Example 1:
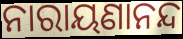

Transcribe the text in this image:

ନାରାୟଣାନନ୍ଦ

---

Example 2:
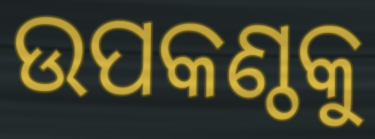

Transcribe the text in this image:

ଉପକଣ୍ଠକୁ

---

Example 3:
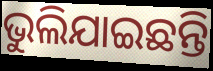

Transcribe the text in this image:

ଭୁଲିଯାଇଛନ୍ତି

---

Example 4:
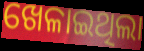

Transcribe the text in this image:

ଖେଳାଇଥିଲା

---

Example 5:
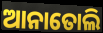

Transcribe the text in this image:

ଆନାତୋଲି